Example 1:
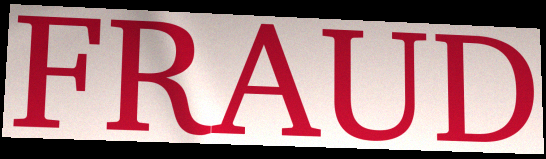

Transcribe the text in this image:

FRAUD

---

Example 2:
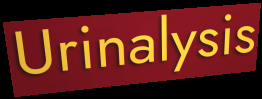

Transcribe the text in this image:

Urinalysis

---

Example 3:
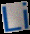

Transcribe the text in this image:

Li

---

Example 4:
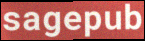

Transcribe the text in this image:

sagepub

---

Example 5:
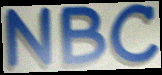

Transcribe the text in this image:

NBC